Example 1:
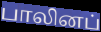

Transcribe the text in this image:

பாலினப்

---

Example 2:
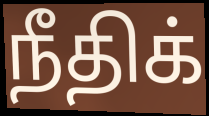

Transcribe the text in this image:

நீதிக்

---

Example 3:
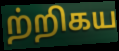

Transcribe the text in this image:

ற்றிகய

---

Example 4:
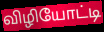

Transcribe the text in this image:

விழியோட்டி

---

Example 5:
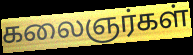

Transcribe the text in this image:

கலைஞர்கள்